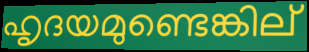
ഹൃദയമുണ്ടെങ്കില്